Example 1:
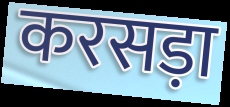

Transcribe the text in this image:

करसड़ा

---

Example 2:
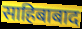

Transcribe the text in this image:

साहिबाबाद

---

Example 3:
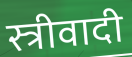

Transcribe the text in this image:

स्त्रीवादी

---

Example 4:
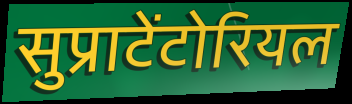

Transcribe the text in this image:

सुप्राटेंटोरियल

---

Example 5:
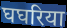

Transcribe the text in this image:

घघरिया